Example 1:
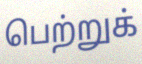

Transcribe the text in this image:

பெற்றுக்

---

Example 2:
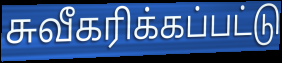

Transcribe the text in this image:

சுவீகரிக்கப்பட்டு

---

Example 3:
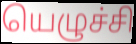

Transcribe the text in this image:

யெழுச்சி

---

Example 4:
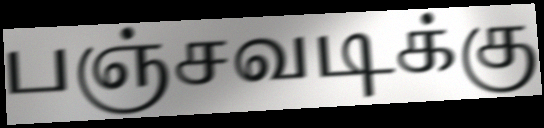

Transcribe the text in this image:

பஞ்சவடிக்கு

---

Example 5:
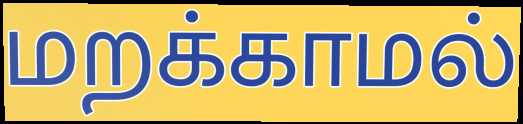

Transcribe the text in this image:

மறக்காமல்